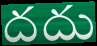
దదు